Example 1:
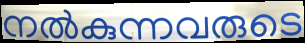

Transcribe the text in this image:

നൽകുന്നവരുടെ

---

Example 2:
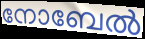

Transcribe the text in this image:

നോബേൽ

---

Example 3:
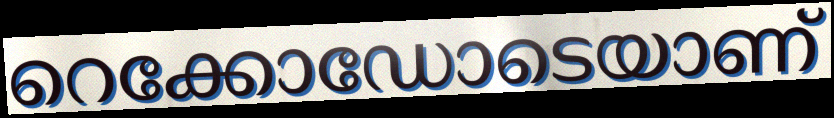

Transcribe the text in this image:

റെക്കോഡോടെയാണ്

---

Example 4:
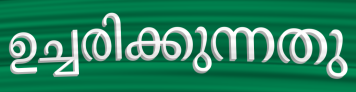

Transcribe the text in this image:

ഉച്ചരിക്കുന്നതു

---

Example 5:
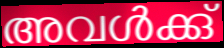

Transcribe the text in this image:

അവൾക്കു്